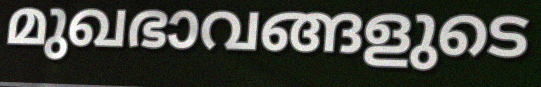
മുഖഭാവങ്ങളുടെ